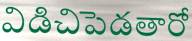
విడిచిపెడతారో